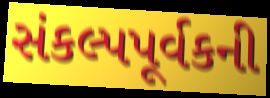
સંકલ્પપૂર્વકની